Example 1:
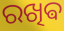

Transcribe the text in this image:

ରଖିଵ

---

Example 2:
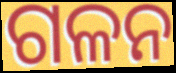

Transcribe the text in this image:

ଗଳନ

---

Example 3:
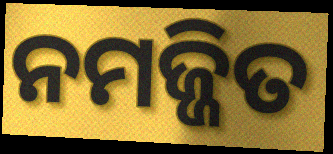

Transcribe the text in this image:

ନମଜ୍ଜିତ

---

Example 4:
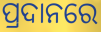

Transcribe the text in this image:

ପ୍ରଦାନରେ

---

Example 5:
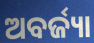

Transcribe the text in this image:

ଅବର୍ଜ୍ୟା